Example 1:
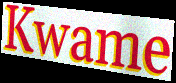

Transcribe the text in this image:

Kwame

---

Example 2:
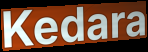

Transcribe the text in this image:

Kedara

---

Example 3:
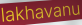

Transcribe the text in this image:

lakhavanu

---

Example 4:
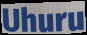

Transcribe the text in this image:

Uhuru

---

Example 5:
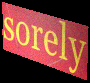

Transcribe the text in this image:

sorely